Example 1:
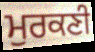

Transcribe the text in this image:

ਮੁਰਕਣੀ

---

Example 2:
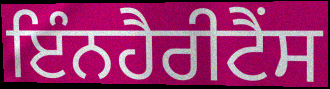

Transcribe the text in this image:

ਇੰਨਹੈਰੀਟੈੰਸ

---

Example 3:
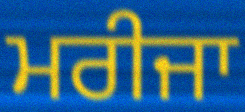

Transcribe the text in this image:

ਮਰੀਜਾ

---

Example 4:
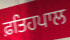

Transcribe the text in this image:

ਫ਼ਤਿਹਪਾਲ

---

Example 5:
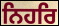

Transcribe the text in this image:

ਨਿਹਰਿ